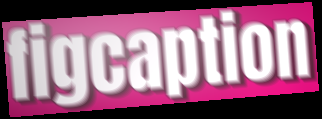
figcaption